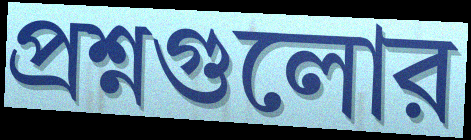
প্রশ্নগুলোর